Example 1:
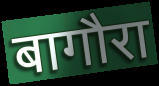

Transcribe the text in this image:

बागौरा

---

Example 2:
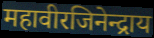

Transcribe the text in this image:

महावीरजिनेन्द्राय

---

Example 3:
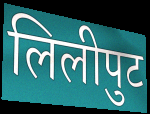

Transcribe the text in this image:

लिलीपुट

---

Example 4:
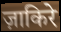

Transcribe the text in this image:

ज़ाकिरे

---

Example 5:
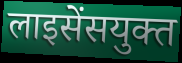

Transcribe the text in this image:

लाइसेंसयुक्त